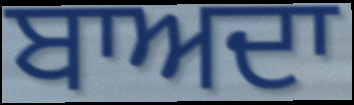
ਬਾਅਦਾ